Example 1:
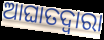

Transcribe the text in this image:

ଆଘାତଦ୍ୱାରା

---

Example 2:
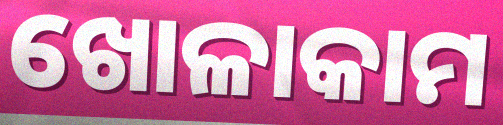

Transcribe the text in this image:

ଖୋଳାକାମ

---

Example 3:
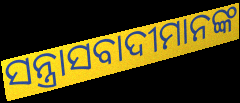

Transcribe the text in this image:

ସନ୍ତ୍ରାସବାଦୀମାନଙ୍କ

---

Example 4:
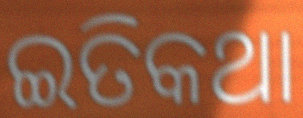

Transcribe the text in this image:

ଇତିକଥା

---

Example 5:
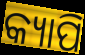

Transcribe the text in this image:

କ୍ୟାପି